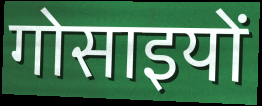
गोसाइयों